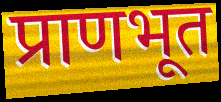
प्राणभूत